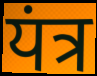
यंत्र